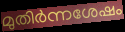
മുതിർന്നശേഷം